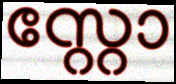
സ്റ്റോ